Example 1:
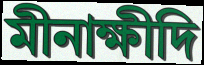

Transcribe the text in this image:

মীনাক্ষীদি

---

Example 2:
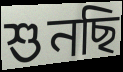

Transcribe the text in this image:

শুনছি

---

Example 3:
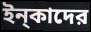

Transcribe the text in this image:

ইন্‌কাদের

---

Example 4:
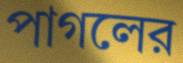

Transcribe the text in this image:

পাগলের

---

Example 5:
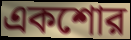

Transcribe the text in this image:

একশোর